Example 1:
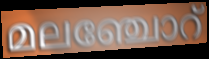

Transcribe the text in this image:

മലഞ്ചോറ്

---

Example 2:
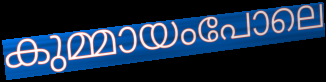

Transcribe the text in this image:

കുമ്മായംപോലെ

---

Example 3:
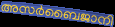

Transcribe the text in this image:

അസർബൈജാനി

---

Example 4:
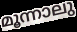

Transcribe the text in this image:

മൂന്നാലു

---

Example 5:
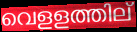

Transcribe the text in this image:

വെളളത്തില്